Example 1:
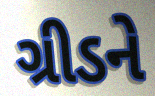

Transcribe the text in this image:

ગ્રીડને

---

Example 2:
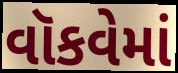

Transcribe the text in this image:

વૉકવેમાં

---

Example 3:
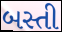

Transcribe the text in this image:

બસ્તી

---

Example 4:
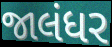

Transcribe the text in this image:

જાલંધર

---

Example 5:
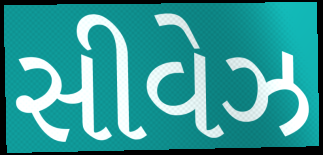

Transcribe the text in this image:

સીવેઝ